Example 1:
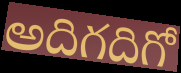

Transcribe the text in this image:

అదిగదిగో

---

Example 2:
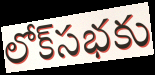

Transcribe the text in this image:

లోక్‌సభకు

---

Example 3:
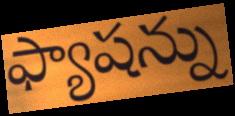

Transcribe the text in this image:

ఫ్యాషన్ను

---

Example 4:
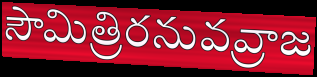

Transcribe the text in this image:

సౌమిత్రిరనువవ్రాజ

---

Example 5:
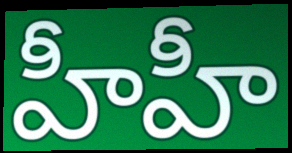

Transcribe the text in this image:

హీహీ